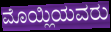
ಮೊಯ್ಲಿಯವರು